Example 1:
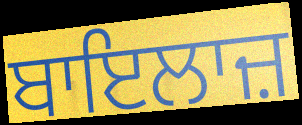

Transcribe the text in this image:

ਬਾਇਲਾਜ਼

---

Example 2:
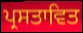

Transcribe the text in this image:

ਪ੍ਰਸਤਾਵਿਤ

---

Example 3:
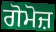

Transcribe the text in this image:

ਗੋਮੋਜ਼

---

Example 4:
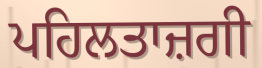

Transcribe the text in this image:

ਪਹਿਲਤਾਜ਼ਗੀ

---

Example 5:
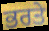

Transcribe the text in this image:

ਭਰਤੇ